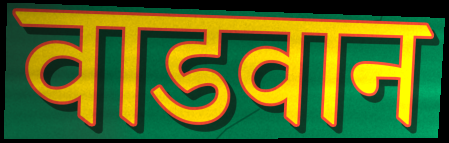
वाडवान